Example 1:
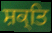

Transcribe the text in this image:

ਸ਼ਕ੍ਤਿ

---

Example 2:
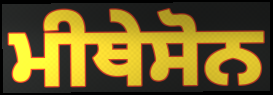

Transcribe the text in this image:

ਮੀਥੇਸੋਨ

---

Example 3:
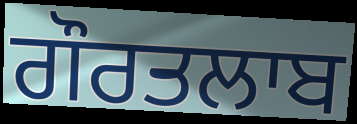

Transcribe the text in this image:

ਗੌਰਤਲਾਬ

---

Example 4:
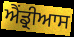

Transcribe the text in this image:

ਐਂਡ੍ਰੀਆਸ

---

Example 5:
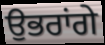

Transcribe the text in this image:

ਉਭਰਾਂਗੇ